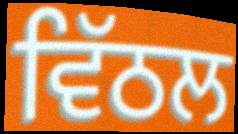
ਵਿੱਠਲ